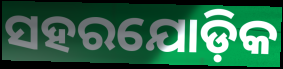
ସହରଯୋଡ଼ିକ